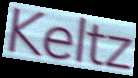
Keltz